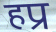
हप्र